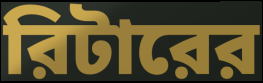
রিটারের